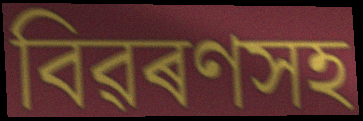
বিৱৰণসহ